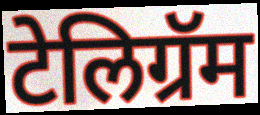
टेलिग्रॅम